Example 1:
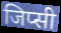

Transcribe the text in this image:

जिप्सी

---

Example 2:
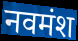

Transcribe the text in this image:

नवमंश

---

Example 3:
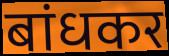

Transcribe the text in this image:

बांधकर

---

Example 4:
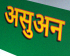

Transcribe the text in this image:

असुअन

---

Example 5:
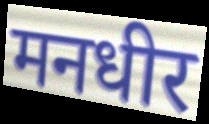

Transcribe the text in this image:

मनधीर